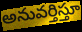
అనువర్తిస్తూ